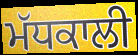
ਮੱਧਕਾਲੀ